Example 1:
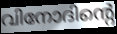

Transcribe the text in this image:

വിനോദിന്റെ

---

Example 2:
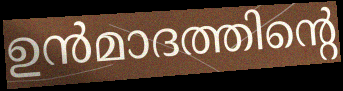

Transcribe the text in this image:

ഉൻമാദത്തിന്റെ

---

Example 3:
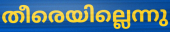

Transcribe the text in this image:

തീരെയില്ലെന്നു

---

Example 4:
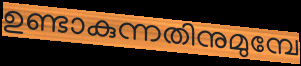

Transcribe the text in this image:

ഉണ്ടാകുന്നതിനുമുമ്പേ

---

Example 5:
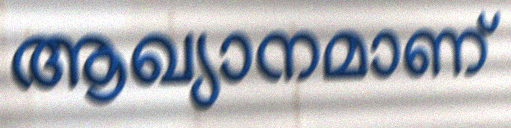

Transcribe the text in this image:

ആഖ്യാനമാണ്